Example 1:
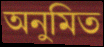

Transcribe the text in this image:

অনুমিত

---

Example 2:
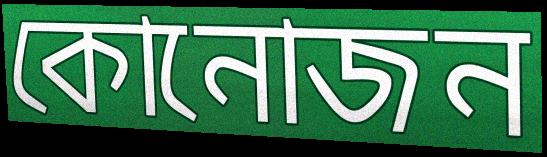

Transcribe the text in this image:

কোনোজন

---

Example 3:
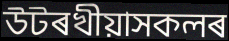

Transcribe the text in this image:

উটৰখীয়াসকলৰ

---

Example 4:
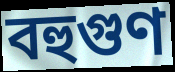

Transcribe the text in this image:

বহুগুণ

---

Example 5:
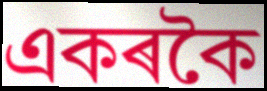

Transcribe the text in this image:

একৰকৈ